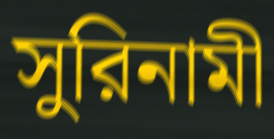
সুরিনামী